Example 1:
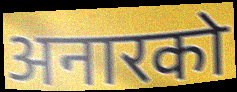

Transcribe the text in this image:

अनारको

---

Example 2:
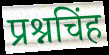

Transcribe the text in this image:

प्रश्नचिंह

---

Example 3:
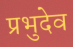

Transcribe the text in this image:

प्रभुदेव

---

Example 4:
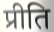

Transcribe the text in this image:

प्रीति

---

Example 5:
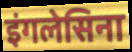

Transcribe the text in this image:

इंगलेसिना